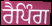
ਰੈਪਿੰਗ